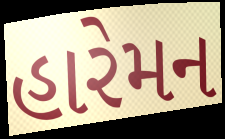
હારેમન